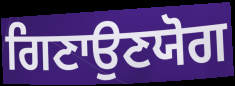
ਗਿਣਾਉਣਯੋਗ